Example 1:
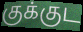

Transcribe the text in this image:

குக்குட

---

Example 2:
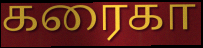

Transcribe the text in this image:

கரைகா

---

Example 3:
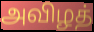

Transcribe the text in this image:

அவிழத்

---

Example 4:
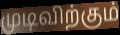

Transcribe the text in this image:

முடிவிற்கும்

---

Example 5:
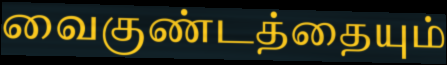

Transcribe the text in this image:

வைகுண்டத்தையும்